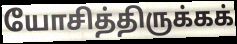
யோசித்திருக்கக்